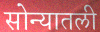
सोन्यातली